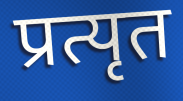
प्रत्यृत